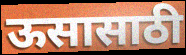
ऊसासाठी